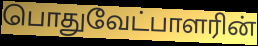
பொதுவேட்பாளரின்